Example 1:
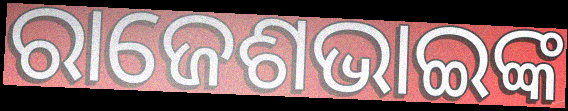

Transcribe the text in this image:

ରାଜେଶଭାଇଙ୍କ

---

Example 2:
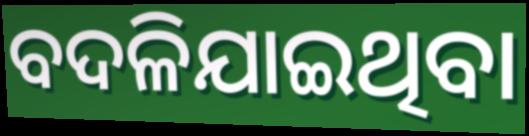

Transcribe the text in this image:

ବଦଳିଯାଇଥିବା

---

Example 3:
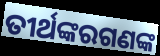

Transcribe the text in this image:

ତୀର୍ଥଙ୍କରଗଣଙ୍କ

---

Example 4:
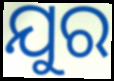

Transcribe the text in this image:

ଯୁର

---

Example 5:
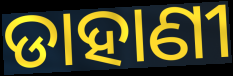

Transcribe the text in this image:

ଡାହାଣୀ